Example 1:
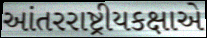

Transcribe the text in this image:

આંતરરાષ્ટ્રીયકક્ષાએ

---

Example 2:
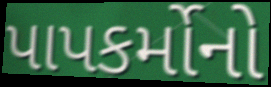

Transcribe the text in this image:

પાપકર્મોનો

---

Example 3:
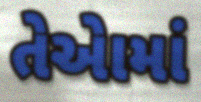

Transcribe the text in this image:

તેએામાં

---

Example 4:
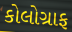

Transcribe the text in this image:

કોલોગ્રાફ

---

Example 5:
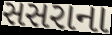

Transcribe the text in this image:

સસરાના